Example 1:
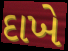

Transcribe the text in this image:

દાખે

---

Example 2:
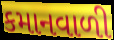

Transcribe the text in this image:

કમાનવાળી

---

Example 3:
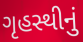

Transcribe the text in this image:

ગૃહસ્થીનું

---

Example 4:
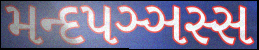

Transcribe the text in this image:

મન્દપઞ્ઞસ્સ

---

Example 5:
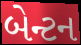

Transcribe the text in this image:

બેન્ટન